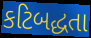
કટિબદ્ધતા